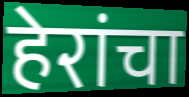
हेरांचा